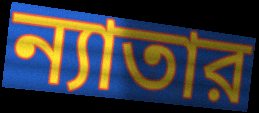
ন্যাতার